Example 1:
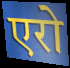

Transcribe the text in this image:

एरो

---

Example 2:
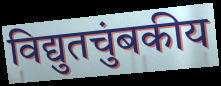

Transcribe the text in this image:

विद्युतचुंबकीय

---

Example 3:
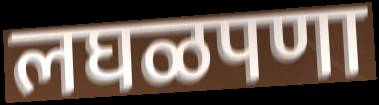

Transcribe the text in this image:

लघळपणा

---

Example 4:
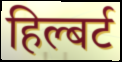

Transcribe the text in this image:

हिल्बर्ट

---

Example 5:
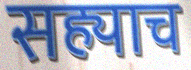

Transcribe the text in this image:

सह्याच